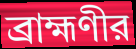
ব্রাহ্মণীর